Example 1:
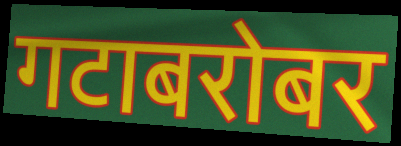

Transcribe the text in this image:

गटाबरोबर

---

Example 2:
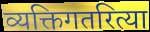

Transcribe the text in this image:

व्यक्तिगतरित्या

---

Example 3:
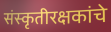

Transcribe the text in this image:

संस्कृतीरक्षकांचे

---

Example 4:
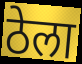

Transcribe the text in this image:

ठेला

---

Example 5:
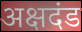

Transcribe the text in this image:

अक्षदंड